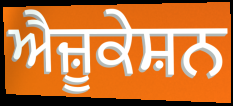
ਐਜ਼ੂਕੇਸ਼ਨ